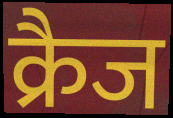
क्रैज